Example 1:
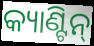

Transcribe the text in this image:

କ୍ୟାଣ୍ଟିନ୍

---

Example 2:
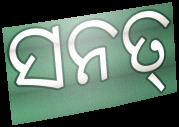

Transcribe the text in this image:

ସନତ୍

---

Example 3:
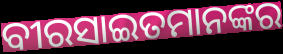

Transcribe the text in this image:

ବୀରସାଇତମାନଙ୍କର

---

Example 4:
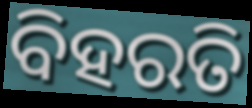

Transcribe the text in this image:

ବିହରତି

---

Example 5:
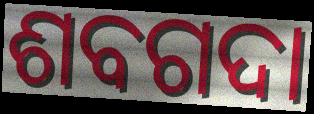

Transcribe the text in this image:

ଶବଗଦା